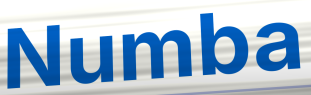
Numba